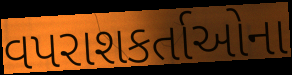
વપરાશકર્તાઓના